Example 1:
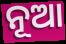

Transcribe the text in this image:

ନୂଆ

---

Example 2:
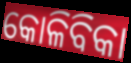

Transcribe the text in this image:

କୋଳିବିକା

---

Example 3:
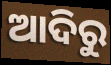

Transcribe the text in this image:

ଆଦିରୁ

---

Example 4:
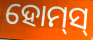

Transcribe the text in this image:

ହୋମ୍‌ସ୍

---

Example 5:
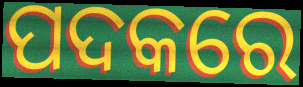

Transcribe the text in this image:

ପଦକରେ